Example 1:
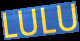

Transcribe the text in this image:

LULU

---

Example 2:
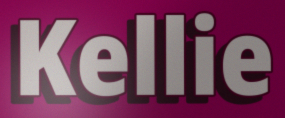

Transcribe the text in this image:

Kellie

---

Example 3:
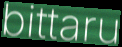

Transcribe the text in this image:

bittaru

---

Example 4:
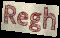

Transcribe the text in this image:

Regh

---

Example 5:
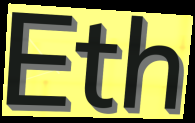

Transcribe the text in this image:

Eth